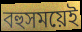
বহুসময়েই